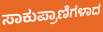
ಸಾಕುಪ್ರಾಣಿಗಳಾದ